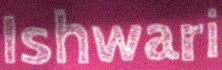
Ishwari